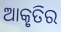
ଆକୃତିର